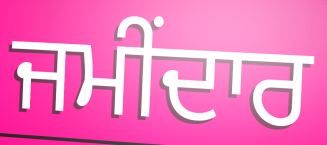
ਜਮੀਂਦਾਰ